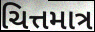
ચિત્તમાત્ર